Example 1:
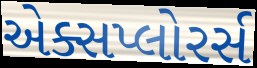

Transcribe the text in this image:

એક્સપ્લોરર્સ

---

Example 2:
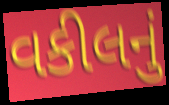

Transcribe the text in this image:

વકીલનું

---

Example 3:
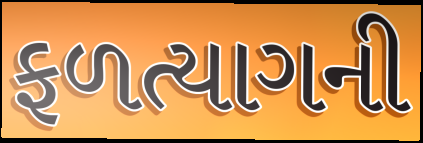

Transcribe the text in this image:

ફળત્યાગની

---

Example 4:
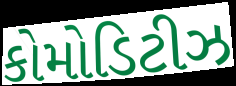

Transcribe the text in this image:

કોમોડિટીઝ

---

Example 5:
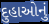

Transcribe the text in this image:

દુહાઓનું